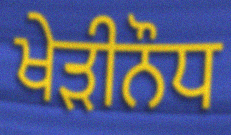
ਖੇੜੀਨੌਧ